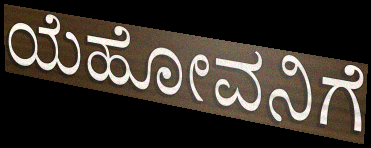
ಯೆಹೋವನಿಗೆ